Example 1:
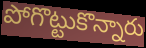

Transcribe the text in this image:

పోగొట్టుకొన్నారు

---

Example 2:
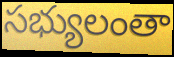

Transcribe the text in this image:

సభ్యులంతా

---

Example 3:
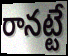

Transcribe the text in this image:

రానట్టే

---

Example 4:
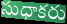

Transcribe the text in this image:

సుధాకరు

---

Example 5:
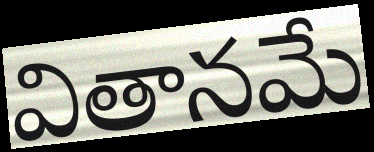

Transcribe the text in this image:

వితానమే